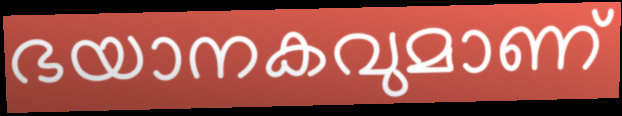
ഭയാനകവുമാണ്